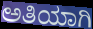
ಅತಿಯಾಗಿ